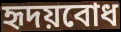
হৃদয়বোধ